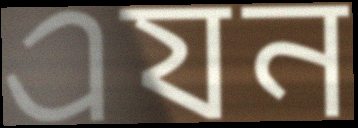
এযন